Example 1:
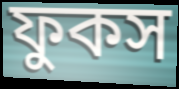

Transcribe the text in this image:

ফুকস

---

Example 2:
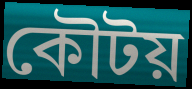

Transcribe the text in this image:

কৌটয়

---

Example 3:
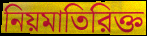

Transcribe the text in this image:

নিয়মাতিরিক্ত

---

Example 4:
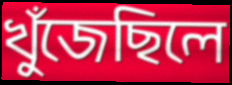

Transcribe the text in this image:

খুঁজেছিলে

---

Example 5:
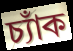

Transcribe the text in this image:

চ্যাঁক